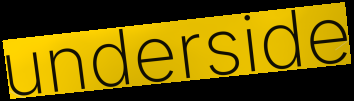
underside